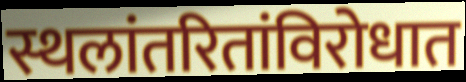
स्थलांतरितांविरोधात